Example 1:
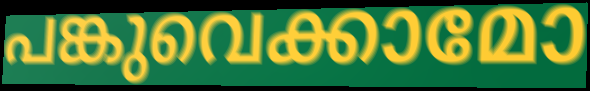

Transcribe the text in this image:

പങ്കുവെക്കാമോ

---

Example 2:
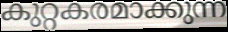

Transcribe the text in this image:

കുറ്റകരമാക്കുന്ന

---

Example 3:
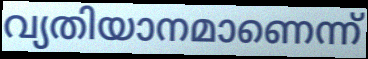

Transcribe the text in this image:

വ്യതിയാനമാണെന്ന്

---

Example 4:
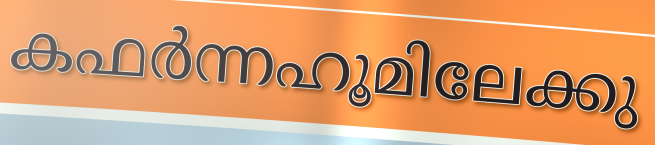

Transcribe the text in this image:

കഫർന്നഹൂമിലേക്കു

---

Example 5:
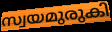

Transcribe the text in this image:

സ്വയമുരുകി